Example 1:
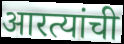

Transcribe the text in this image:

आरत्यांची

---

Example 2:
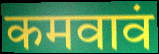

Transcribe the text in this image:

कमवावं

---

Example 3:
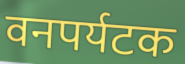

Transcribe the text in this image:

वनपर्यटक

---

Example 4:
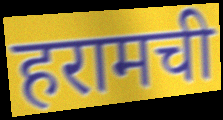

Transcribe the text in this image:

हरामची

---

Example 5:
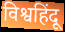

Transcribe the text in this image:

विश्वहिंदू